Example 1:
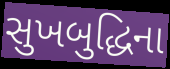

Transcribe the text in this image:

સુખબુદ્ધિના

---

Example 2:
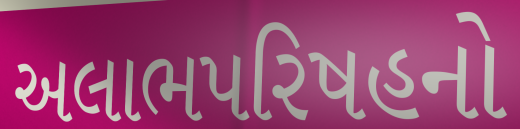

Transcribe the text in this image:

અલાભપરિષહનો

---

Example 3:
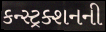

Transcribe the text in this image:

કન્સ્ટ્રક્શનની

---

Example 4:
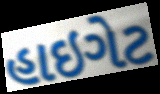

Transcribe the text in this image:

હાઇગેટ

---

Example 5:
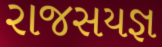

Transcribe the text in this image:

રાજસયજ્ઞ